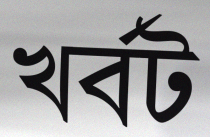
খর্বট